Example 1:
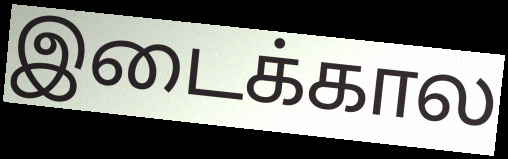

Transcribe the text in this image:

இடைக்கால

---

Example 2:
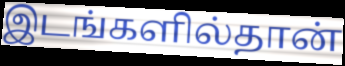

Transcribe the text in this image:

இடங்களில்தான்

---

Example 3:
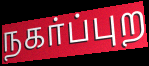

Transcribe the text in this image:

நகர்ப்புற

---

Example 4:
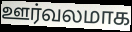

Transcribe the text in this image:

ஊர்வலமாக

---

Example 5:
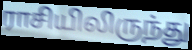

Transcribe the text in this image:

ராசியிலிருந்து